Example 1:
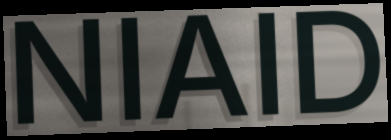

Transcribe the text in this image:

NIAID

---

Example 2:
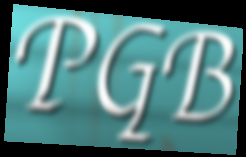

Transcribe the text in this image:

PGB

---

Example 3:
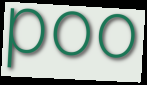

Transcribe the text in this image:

poo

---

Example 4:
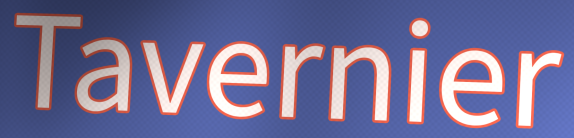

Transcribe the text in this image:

Tavernier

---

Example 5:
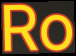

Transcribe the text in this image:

Ro